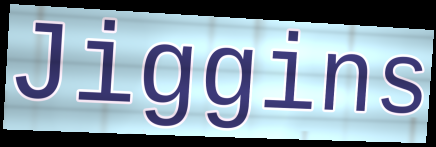
Jiggins